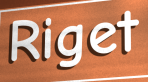
Riget